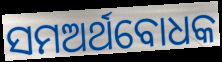
ସମଅର୍ଥବୋଧକ